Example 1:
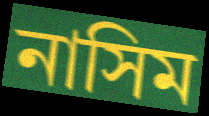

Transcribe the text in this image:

নাসিম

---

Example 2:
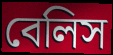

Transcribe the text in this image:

বেলিস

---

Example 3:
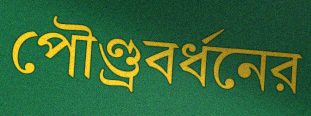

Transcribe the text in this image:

পৌণ্ড্রবর্ধনের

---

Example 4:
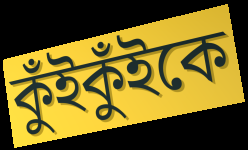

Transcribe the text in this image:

কুঁইকুঁইকে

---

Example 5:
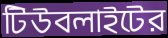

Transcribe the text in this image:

টিউবলাইটের